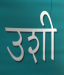
उशी